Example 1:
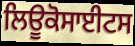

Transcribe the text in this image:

ਲਿਊਕੋਸਾਈਟਸ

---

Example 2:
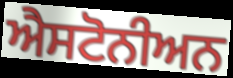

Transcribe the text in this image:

ਐਸਟੋਨੀਅਨ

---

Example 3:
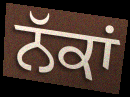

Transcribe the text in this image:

ਨੱਕਾਂ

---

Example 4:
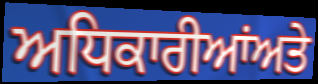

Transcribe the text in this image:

ਅਧਿਕਾਰੀਆਂਅਤੇ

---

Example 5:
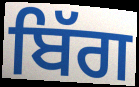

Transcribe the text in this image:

ਬਿੱਗ